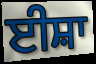
ਈਸ਼ਾ